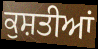
ਕੁਸ਼ਤੀਆਂ